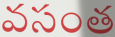
వసంత